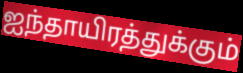
ஐந்தாயிரத்துக்கும்